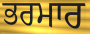
ਭਰਮਾਰ